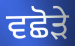
ਵਛੋੜੇ